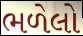
ભળેલો